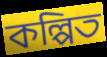
কল্পিত